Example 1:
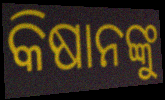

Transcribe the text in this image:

କିଷାନଙ୍କୁ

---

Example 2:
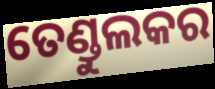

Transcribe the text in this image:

ତେଣ୍ଡୁଲକର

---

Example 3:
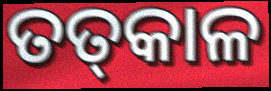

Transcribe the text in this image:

ତତ୍‌କାଳ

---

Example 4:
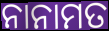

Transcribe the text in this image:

ନାନାମତ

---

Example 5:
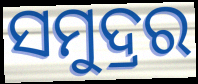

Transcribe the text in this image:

ସମୁଦ୍ରର